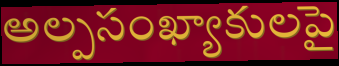
అల్పసంఖ్యాకులపై